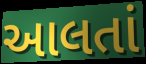
આલતાં